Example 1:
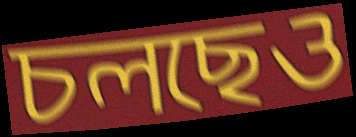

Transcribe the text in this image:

চলছেও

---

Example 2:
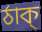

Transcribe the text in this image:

ঠাক্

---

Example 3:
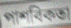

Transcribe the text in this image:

পাশবিকতা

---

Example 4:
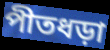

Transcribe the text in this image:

পীতধড়া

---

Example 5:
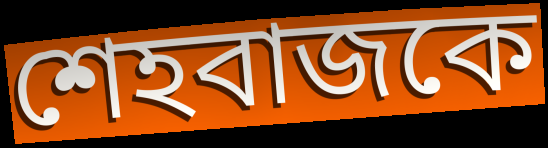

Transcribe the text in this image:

শেহবাজকে